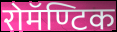
रोमॅण्टिक